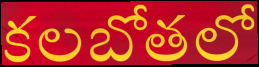
కలబోతలో